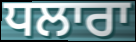
ਧਲਾਰਾ